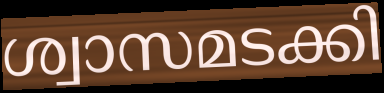
ശ്വാസമടക്കി